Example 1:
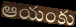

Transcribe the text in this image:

ఆయంకు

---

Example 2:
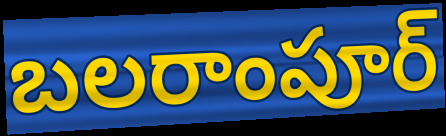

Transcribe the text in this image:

బలరాంపూర్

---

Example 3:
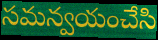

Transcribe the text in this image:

సమన్వయంచేసి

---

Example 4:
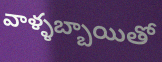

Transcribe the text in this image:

వాళ్ళబ్బాయితో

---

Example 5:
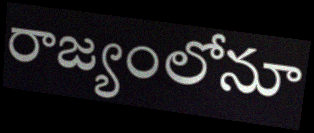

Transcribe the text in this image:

రాజ్యంలోనూ